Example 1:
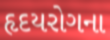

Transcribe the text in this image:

હૃદયરોગના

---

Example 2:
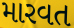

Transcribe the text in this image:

મારવત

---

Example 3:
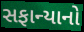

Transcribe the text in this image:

સફાન્યાનો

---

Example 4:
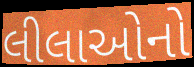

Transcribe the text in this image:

લીલાઓનો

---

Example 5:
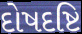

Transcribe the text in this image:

દોષદષ્ટિ